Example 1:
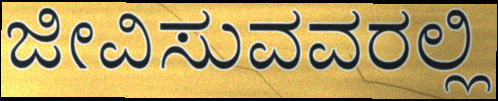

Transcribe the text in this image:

ಜೀವಿಸುವವರಲ್ಲಿ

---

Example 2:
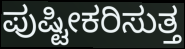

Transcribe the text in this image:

ಪುಷ್ಟೀಕರಿಸುತ್ತ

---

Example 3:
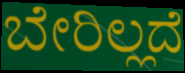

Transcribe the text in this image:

ಬೇರಿಲ್ಲದೆ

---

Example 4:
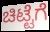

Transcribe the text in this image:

ಚಿಟ್ಟೆಗೆ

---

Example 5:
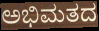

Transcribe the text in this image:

ಅಭಿಮತದ